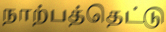
நாற்பத்தெட்டு